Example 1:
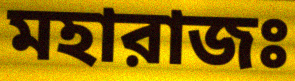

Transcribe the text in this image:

মহারাজঃ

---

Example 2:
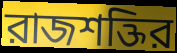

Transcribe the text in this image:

রাজশক্তির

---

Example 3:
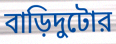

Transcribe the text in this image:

বাড়িদুটোর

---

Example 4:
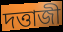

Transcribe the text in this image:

দত্তাজী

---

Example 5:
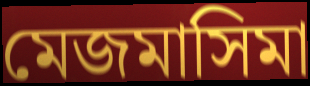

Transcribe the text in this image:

মেজমাসিমা